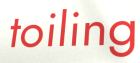
toiling